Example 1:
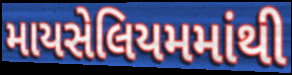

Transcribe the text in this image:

માયસેલિયમમાંથી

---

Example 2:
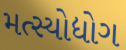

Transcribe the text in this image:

મત્સ્યોદ્યોગ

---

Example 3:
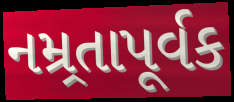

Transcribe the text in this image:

નમ્ર્રતાપૂર્વક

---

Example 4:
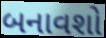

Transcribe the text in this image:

બનાવશો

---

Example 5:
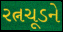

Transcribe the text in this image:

રત્નચૂડને